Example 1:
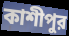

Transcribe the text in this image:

কাশীপুর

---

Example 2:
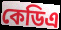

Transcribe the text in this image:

কেডিএ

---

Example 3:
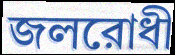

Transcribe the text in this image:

জলরোধী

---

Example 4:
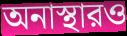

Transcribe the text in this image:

অনাস্থারও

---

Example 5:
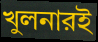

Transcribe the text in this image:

খুলনারই